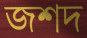
জশদ